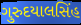
ગુરુદયાલસિંહ